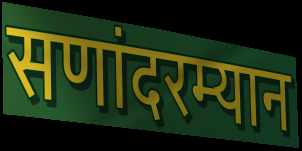
सणांदरम्यान